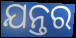
ଯନ୍ତର